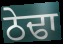
ਠੇਢਾ